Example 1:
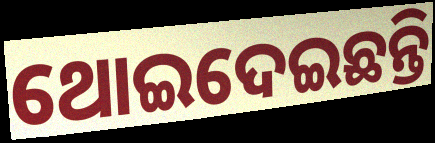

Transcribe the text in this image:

ଥୋଇଦେଇଛନ୍ତି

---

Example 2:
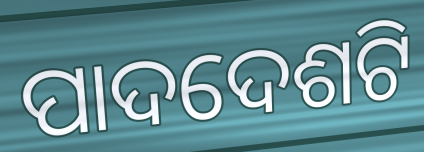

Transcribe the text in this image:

ପାଦଦେଶଟି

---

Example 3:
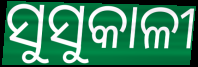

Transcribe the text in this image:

ସୁସୁକାଳୀ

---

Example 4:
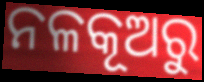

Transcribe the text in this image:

ନଳକୂଅରୁ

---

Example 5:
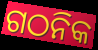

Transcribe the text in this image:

ଗଠନିକ